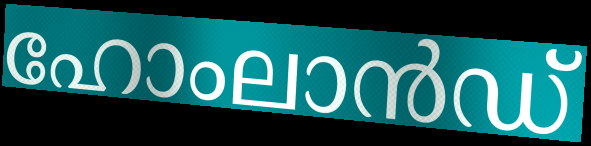
ഹോംലാൻഡ്